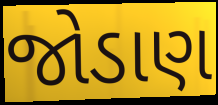
જોડાણ